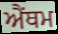
ਐਂਥਮ